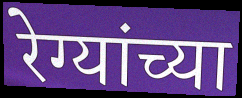
रेग्यांच्या